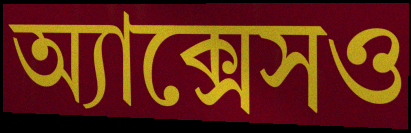
অ্যাক্সেসও